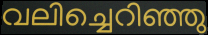
വലിച്ചെറിഞ്ഞു